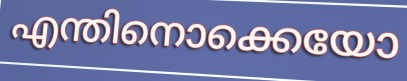
എന്തിനൊക്കെയോ